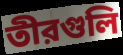
তীরগুলি